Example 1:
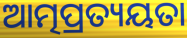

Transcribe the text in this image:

ଆତ୍ମପ୍ରତ୍ୟୟତା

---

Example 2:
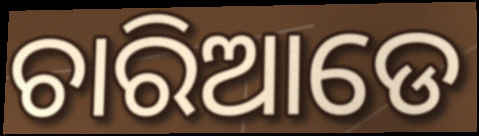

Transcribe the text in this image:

ଚାରିଆଡେ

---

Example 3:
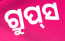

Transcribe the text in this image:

ଗ୍ରୁପ୍‌ସ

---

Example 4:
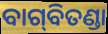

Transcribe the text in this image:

ବାଗ୍‌ବିତଣ୍ଡା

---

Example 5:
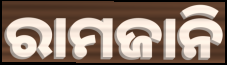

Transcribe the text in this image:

ରାମଜାନି